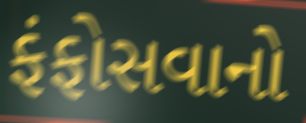
ફંફોસવાનો